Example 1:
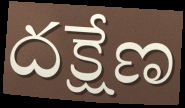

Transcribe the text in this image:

దక్షేణ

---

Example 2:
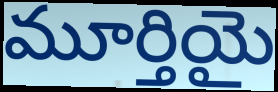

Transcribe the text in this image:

మూర్తియై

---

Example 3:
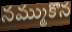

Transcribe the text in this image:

నమ్ముకొన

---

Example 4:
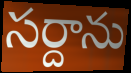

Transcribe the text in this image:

సర్దాను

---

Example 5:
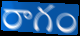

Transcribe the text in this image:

రాగం